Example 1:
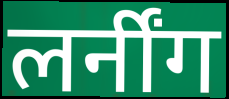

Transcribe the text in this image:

लर्नींग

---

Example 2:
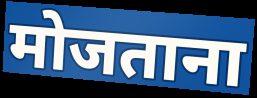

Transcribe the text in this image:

मोजताना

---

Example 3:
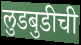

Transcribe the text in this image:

लुडबुडीची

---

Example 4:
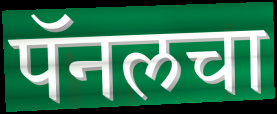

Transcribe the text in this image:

पॅनलचा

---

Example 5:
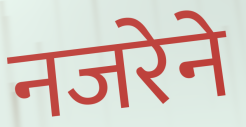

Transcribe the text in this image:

नजरेने